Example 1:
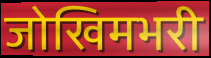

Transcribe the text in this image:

जोखिमभरी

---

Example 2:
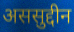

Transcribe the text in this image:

अससुद्दीन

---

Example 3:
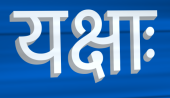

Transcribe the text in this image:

यक्षाः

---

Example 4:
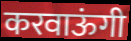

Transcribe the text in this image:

करवाऊंगी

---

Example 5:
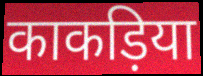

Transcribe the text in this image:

काकड़िया